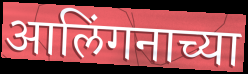
आलिंगनाच्या